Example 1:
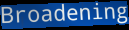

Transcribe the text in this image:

Broadening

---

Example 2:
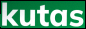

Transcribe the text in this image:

kutas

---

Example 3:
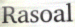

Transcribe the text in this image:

Rasoal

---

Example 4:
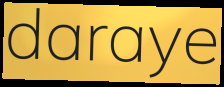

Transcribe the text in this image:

daraye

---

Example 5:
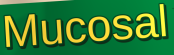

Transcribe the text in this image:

Mucosal